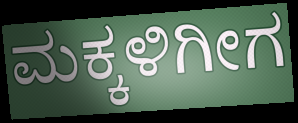
ಮಕ್ಕಳಿಗೀಗ